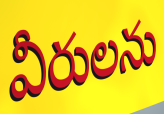
వీరులను